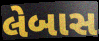
લેબાસ